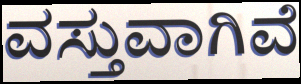
ವಸ್ತುವಾಗಿವೆ